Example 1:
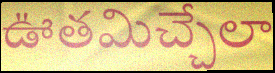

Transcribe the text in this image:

ఊతమిచ్చేలా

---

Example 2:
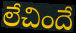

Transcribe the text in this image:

లేచిందే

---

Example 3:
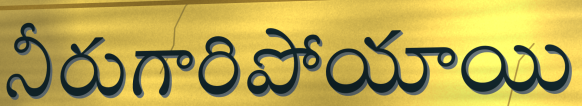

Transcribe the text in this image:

నీరుగారిపోయాయి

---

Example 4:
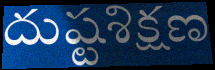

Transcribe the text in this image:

దుష్టశిక్షణ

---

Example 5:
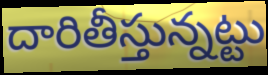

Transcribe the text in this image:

దారితీస్తున్నట్టు